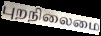
புறநிலைமை